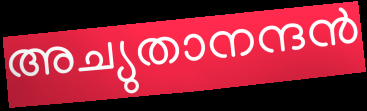
അച്യുതാനന്ദൻ